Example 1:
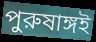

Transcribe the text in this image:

পুরুষাঙ্গই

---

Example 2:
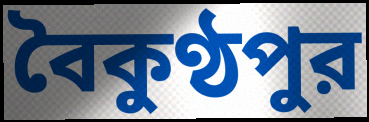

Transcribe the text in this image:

বৈকুণ্ঠপুর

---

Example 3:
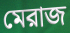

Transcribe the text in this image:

মেরাজ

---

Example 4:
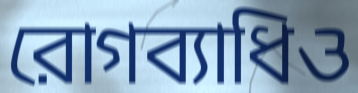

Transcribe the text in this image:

রোগব্যাধিও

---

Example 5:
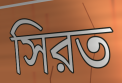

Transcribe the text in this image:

সিরত